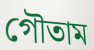
গৌতাম